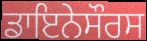
ਡਾਇਨੇਸੌਰਸ